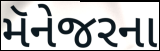
મૅનેજરના